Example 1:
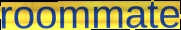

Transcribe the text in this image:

roommate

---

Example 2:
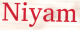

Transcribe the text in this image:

Niyam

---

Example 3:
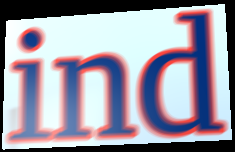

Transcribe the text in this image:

ind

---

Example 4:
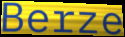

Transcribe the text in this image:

Berze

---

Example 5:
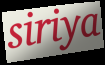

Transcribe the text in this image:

siriya